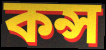
কন্স